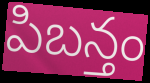
పిబన్తం